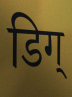
डिग्